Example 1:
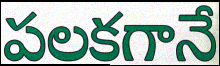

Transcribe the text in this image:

పలకగానే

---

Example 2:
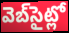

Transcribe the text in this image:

వెబ్‌సైట్లో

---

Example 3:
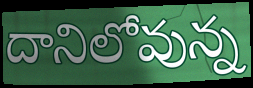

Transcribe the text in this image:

దానిలోవున్న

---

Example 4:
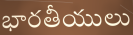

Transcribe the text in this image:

భారతీయులు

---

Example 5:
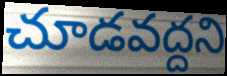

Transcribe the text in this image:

చూడవద్దని